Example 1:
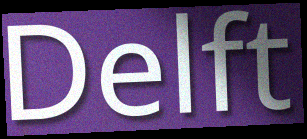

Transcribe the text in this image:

Delft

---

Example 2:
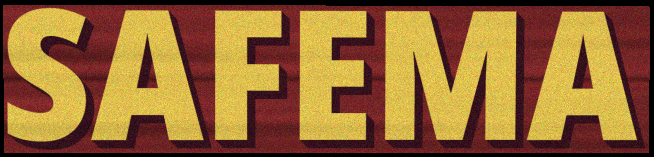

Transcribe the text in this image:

SAFEMA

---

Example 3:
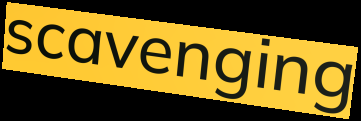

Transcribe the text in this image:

scavenging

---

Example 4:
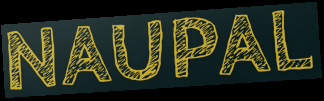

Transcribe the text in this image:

NAUPAL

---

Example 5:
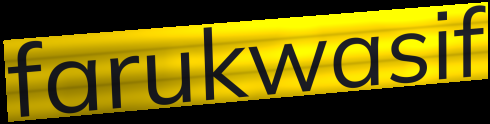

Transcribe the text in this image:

farukwasif